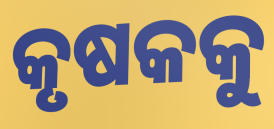
କୃଷକକୁ